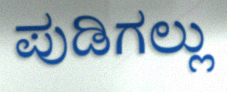
ಪುಡಿಗಲ್ಲು